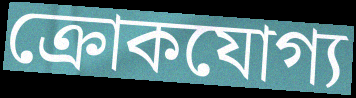
ক্রোকযোগ্য